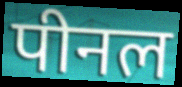
पीनल